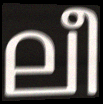
ലീ